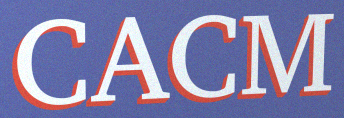
CACM